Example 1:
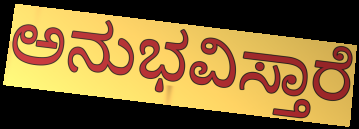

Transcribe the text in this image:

ಅನುಭವಿಸ್ತಾರೆ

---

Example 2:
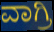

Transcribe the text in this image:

ವಾಗ್ರಿ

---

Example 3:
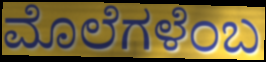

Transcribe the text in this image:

ಮೊಲೆಗಳೆಂಬ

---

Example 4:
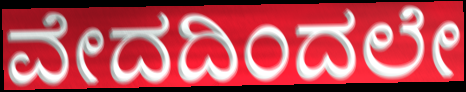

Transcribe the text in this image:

ವೇದದಿಂದಲೇ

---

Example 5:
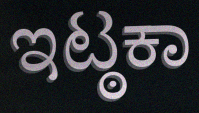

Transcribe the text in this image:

ಇಟ್ಠಕಾ